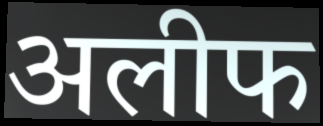
अलीफ